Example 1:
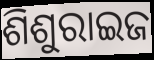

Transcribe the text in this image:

ଶିଶୁରାଇଜ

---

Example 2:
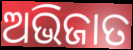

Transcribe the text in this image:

ଅଭିଜାତ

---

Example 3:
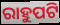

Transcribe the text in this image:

ରାହୁପଟି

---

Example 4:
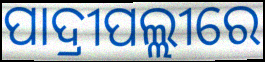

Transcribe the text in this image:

ପାଦ୍ରୀପଲ୍ଲୀରେ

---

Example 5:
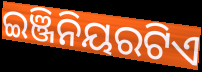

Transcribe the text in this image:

ଇଞ୍ଜିନିୟରଟିଏ